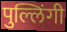
पुल्लिंगी